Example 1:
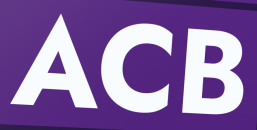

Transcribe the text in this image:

ACB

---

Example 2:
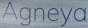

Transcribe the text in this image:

Agneya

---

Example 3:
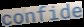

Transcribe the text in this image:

confide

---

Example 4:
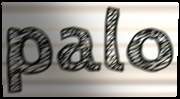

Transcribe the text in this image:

palo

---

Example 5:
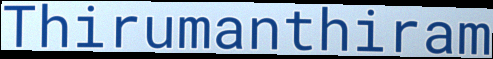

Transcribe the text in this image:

Thirumanthiram